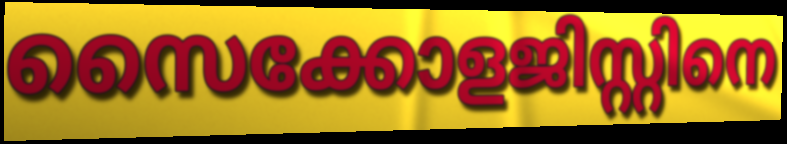
സൈക്കോളജിസ്റ്റിനെ